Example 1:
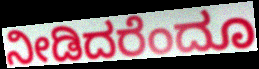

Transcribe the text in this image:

ನೀಡಿದರೆಂದೂ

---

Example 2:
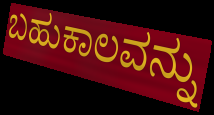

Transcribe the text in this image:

ಬಹುಕಾಲವನ್ನು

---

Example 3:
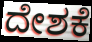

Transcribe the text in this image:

ದೇಶಕೆ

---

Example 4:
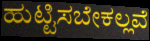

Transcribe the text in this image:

ಹುಟ್ಟಿಸಬೇಕಲ್ಲವೆ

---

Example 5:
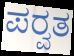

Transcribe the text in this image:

ಪರ್‍ವತ